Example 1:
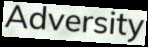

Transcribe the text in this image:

Adversity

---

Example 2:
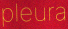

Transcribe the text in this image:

pleura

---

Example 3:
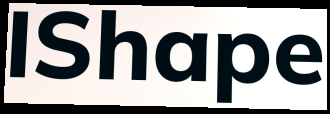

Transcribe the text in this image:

IShape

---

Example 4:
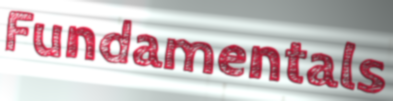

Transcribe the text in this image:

Fundamentals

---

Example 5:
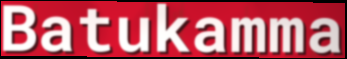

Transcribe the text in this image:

Batukamma